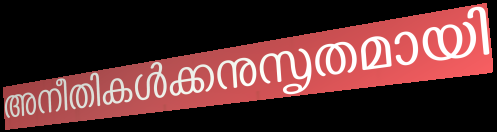
അനീതികൾക്കനുസൃതമായി